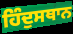
ਹਿੰਦੁਸਥਾਨ